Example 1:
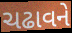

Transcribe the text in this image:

ચઢાવને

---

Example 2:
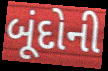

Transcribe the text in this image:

બૂંદોની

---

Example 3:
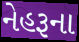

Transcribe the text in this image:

નેહરૂના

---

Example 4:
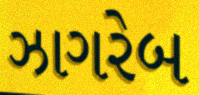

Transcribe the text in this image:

ઝાગરેબ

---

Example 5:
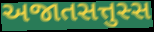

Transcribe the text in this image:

અજાતસત્તુસ્સ